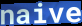
naive